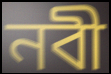
নবী